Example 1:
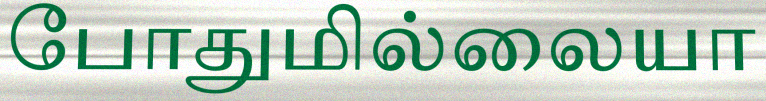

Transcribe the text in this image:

போதுமில்லையா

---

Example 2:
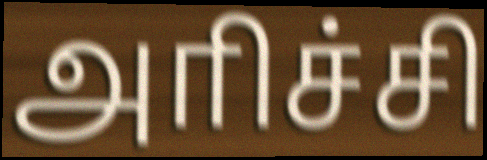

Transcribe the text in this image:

அரிச்சி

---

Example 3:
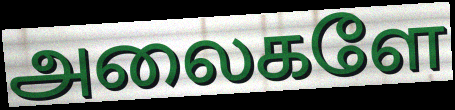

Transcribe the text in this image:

அலைகளே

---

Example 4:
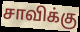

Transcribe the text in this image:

சாவிக்கு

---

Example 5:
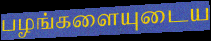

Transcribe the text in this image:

பழங்களையுடைய